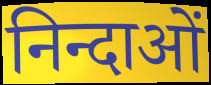
निन्दाओं